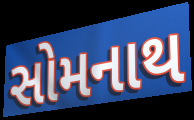
સોમનાથ